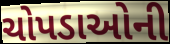
ચોપડાઓની